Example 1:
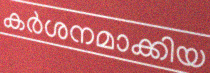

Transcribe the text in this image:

കർശനമാക്കിയ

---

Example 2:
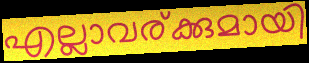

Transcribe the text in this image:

എല്ലാവര്ക്കുമായി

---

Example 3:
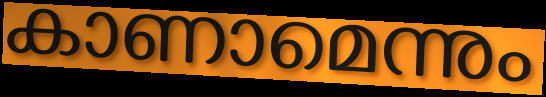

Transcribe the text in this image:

കാണാമെന്നും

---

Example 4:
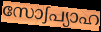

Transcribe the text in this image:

സോഽപ്യാഹ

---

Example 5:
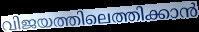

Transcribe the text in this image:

വിജയത്തിലെത്തിക്കാൻ